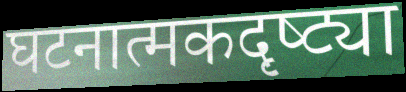
घटनात्मकदृष्ट्या